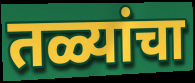
तळ्यांचा